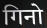
गिनो